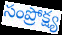
సంప్రోక్ష్య